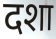
दशा